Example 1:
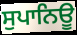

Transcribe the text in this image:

ਸੁਪਾਨਿਊ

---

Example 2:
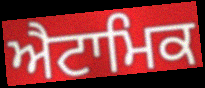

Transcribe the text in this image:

ਐਟਾਮਿਕ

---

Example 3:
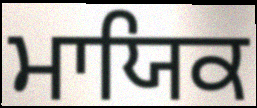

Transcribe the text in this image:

ਮਾਯਿਕ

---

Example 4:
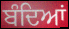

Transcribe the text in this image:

ਬੰਦਿਆਂ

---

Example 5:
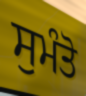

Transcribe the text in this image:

ਸੁਮੰਤੋ